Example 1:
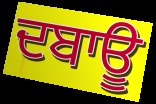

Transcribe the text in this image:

ਦਬਾਊ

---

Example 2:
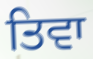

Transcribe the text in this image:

ਤਿਵਾ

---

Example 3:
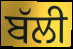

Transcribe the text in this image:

ਬੱਲੀ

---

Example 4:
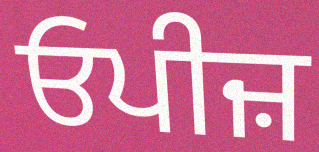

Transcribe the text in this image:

ਓਪੀਜ਼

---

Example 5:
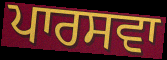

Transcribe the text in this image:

ਪਾਰਸਵਾ